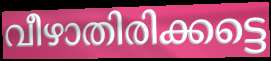
വീഴാതിരിക്കട്ടെ